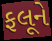
ફલૂને